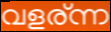
വളര്ന്ന